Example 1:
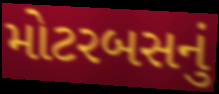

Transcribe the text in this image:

મોટરબસનું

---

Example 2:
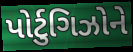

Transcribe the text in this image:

પોર્ટુગિઝોને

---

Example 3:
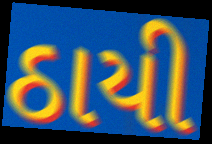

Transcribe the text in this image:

ઠાયી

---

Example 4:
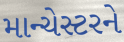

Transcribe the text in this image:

માન્ચેસ્ટરને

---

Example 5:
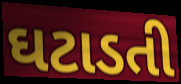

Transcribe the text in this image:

ઘટાડતી